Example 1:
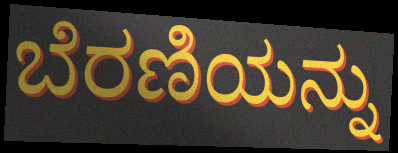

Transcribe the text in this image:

ಬೆರಣಿಯನ್ನು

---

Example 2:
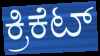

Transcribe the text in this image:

ಕ್ರಿಕೆಟ್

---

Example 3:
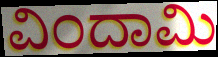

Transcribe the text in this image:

ವಿಂದಾಮಿ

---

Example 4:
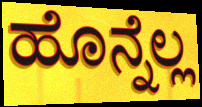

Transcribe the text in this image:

ಹೊನ್ನೆಲ್ಲ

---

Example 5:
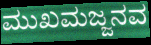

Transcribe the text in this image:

ಮುಖಮಜ್ಜನವ